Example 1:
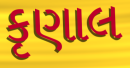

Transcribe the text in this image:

કૃણાલ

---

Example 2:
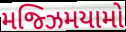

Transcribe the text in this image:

મજ્ઝિમયામો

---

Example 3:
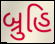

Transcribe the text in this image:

બ્રુહિ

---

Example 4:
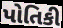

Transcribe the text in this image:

પોતિકી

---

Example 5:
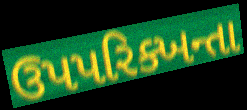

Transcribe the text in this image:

ઉપપરિક્ખન્તા